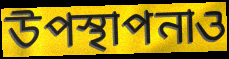
উপস্থাপনাও